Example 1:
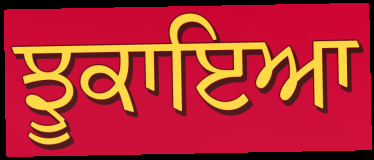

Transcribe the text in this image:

ਝੂਕਾਇਆ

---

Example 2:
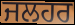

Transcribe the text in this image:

ਜਲਹਰ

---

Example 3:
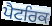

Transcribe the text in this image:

ਪੈਟਰਿਕ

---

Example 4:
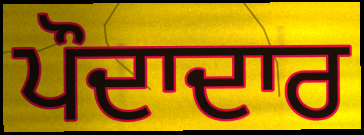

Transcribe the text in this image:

ਪੌਦਾਦਾਰ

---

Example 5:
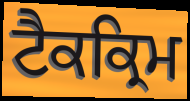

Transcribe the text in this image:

ਟੈਕਕ੍ਰਿਮ